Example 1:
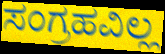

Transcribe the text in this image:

ಸಂಗ್ರಹವಿಲ್ಲ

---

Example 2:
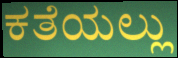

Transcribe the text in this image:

ಕತೆಯಲ್ಲು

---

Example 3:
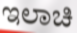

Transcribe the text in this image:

ಇಲಾಚಿ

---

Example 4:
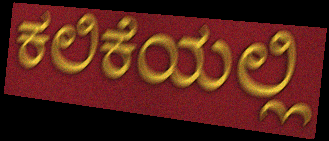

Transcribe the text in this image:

ಕಲಿಕೆಯಲ್ಲಿ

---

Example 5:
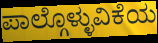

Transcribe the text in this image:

ಪಾಲ್ಗೊಳ್ಳುವಿಕೆಯ